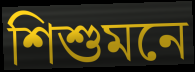
শিশুমনে